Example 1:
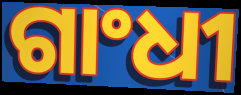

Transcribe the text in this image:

ଗାଂଧୀ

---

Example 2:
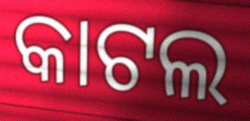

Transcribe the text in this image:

କାଟଲ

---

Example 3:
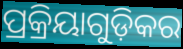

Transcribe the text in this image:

ପ୍ରକ୍ରିୟାଗୁଡ଼ିକର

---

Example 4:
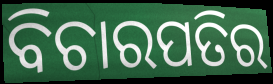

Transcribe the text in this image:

ବିଚାରପତିର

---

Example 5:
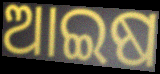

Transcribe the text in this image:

ଆଇଷ